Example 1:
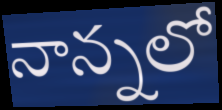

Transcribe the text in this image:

నాన్నలో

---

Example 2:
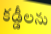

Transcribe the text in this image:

కడ్డీలను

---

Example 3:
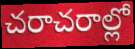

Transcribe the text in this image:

చరాచరాల్లో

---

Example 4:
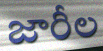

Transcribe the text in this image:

జారీల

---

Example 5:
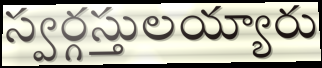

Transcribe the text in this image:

స్వర్గస్తులయ్యారు